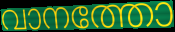
വാനത്തോ